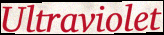
Ultraviolet